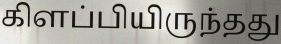
கிளப்பியிருந்தது